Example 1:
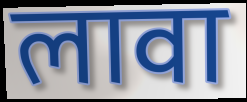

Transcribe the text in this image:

लावा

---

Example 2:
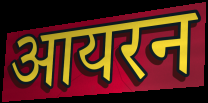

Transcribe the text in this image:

आयरन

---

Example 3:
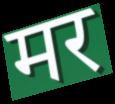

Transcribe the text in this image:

मर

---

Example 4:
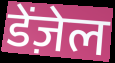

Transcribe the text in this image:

डेंज़ेल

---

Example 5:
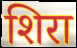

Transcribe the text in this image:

शिरा